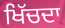
ਖਿੱਚਦਾ